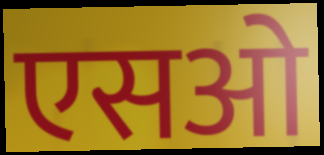
एसओ